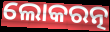
ଲୋକରତ୍ନ